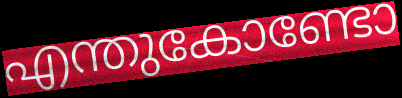
എന്തുകോണ്ടോ